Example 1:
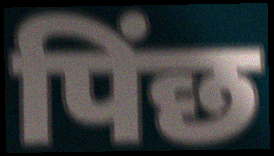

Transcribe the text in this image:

पिंछ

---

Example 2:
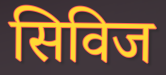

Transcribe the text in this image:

सिविज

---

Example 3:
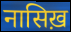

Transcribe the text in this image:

नासिख़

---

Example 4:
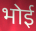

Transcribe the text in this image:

भोई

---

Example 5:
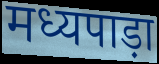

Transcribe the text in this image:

मध्यपाड़ा